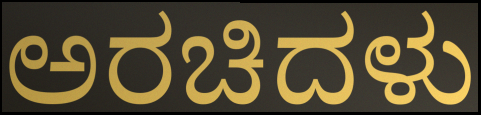
ಅರಚಿದಳು